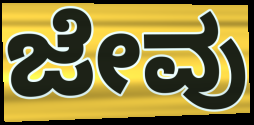
ಜೇವು